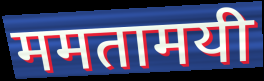
ममतामयी